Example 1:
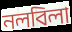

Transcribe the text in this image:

নলবিলা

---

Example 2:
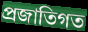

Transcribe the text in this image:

প্রজাতিগত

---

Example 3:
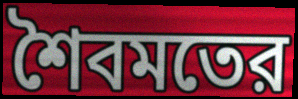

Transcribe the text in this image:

শৈবমতের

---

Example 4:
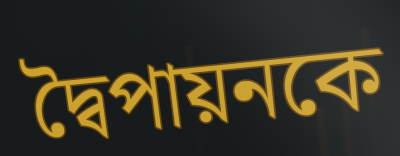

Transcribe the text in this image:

দ্বৈপায়নকে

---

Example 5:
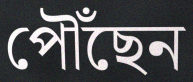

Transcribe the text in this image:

পৌঁছেন